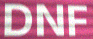
DNF